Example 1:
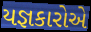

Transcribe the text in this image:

યજ્ઞકારોએ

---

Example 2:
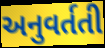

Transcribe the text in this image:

અનુવર્તતી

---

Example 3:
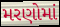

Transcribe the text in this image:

મરણોમાં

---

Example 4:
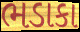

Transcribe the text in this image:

ભડાકા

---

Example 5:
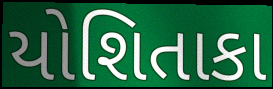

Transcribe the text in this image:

યોશિતાકા